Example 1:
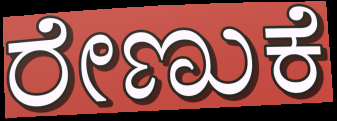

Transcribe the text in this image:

ರೇಣುಕೆ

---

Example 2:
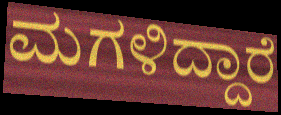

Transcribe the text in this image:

ಮಗಳಿದ್ದಾರೆ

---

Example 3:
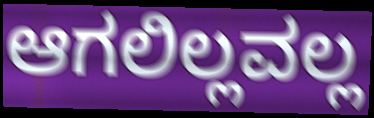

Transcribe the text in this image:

ಆಗಲಿಲ್ಲವಲ್ಲ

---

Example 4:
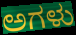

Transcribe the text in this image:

ಅಗಳು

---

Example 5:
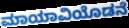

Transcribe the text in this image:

ಮಾಯಾವಿಯೊಡನೆ